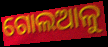
ଗୋଲଆଳୁ